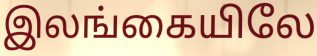
இலங்கையிலே